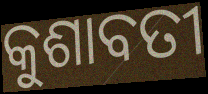
କୁଶାବତୀ